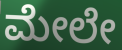
ಮೇಲೇ